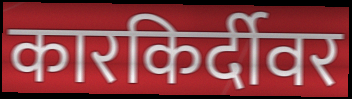
कारकिर्दीवर